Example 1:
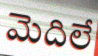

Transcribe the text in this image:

మెదిలే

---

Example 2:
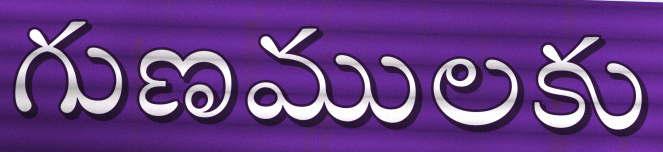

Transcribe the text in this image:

గుణములకు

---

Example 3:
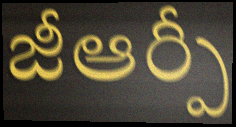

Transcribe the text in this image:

జీఆర్పీ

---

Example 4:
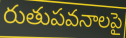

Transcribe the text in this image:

రుతుపవనాలపై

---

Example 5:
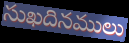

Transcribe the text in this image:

సుఖదినములు